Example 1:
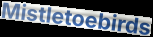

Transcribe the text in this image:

Mistletoebirds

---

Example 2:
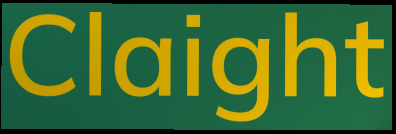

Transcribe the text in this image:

Claight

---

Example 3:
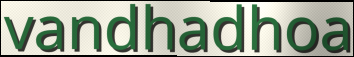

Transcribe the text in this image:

vandhadhoa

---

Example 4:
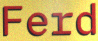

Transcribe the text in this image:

Ferd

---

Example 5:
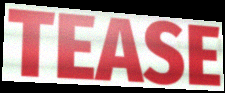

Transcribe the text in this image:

TEASE